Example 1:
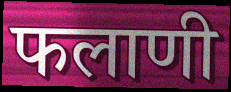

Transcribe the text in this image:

फलाणी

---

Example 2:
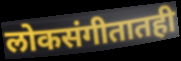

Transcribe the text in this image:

लोकसंगीतातही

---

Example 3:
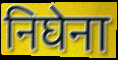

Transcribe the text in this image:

निघेना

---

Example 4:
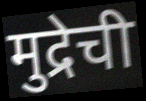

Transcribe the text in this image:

मुद्रेची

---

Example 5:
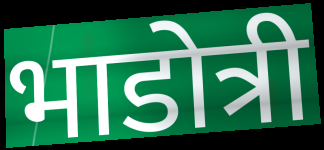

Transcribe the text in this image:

भाडोत्री